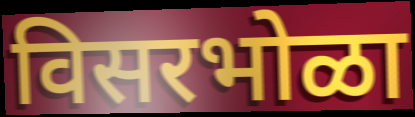
विसरभोळा